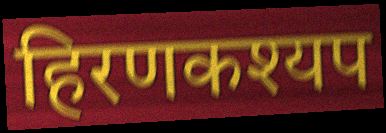
हिरणकश्यप